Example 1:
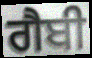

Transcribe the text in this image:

ਗੈਬੀ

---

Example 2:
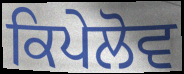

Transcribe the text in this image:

ਕਿਪੇਲੋਵ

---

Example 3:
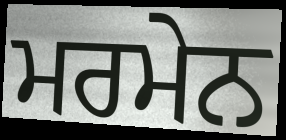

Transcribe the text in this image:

ਮਰਮੇਨ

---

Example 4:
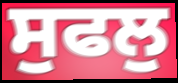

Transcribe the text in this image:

ਸੁਫਲੁ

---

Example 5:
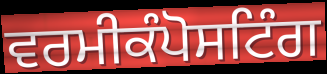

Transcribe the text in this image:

ਵਰਮੀਕੰਪੋਸਟਿੰਗ